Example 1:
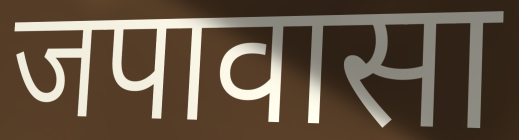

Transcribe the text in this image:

जपावासा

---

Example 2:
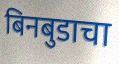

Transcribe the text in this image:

बिनबुडाचा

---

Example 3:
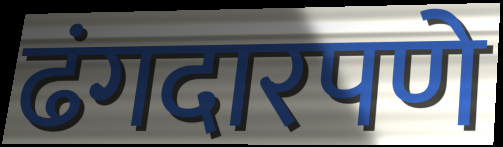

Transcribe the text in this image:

ढंगदारपणे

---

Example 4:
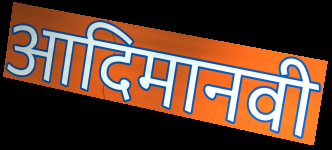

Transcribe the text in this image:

आदिमानवी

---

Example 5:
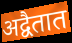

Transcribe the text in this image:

अद्वैतात